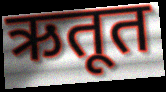
ऋतूत